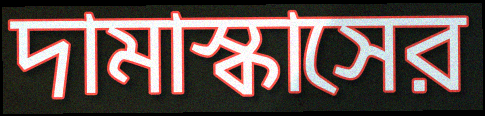
দামাস্কাসের